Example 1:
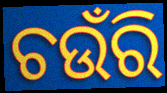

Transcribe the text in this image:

ଚଉଁରି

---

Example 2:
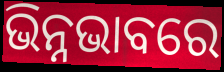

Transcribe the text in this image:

ଭିନ୍ନଭାବରେ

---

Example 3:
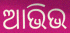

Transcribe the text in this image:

ଆଭିଭ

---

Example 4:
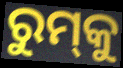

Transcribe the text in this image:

ରୁମ୍‍କୁ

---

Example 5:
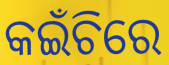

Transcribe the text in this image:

କଇଁଚିରେ